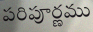
పరిపూర్ణము